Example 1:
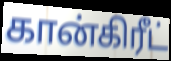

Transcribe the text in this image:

கான்கிரீட்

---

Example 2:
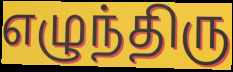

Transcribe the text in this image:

எழுந்திரு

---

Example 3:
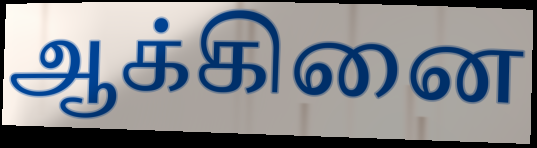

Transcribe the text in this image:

ஆக்கினை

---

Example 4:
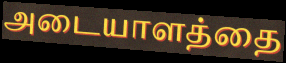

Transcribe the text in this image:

அடையாளத்தை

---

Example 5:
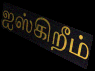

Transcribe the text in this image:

ஐஸ்கிறீம்